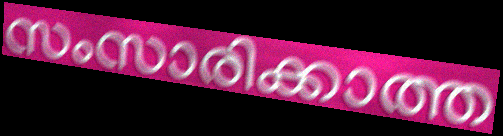
സംസാരിക്കാത്ത